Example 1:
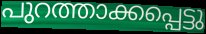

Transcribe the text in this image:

പുറത്താക്കപ്പെട്ടു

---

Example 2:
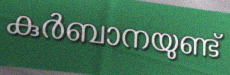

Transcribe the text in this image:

കുർബാനയുണ്ട്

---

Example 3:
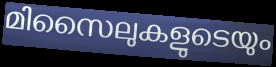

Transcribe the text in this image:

മിസൈലുകളുടെയും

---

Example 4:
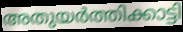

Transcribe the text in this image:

അതുയർത്തിക്കാട്ടി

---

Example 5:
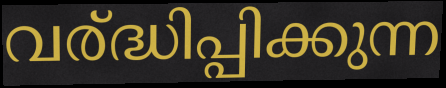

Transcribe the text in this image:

വര്ദ്ധിപ്പിക്കുന്ന